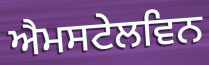
ਐਮਸਟੇਲਵਿਨ